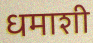
धमाशी